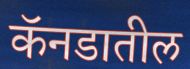
कॅनडातील